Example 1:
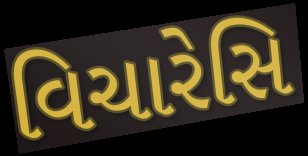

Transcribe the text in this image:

વિચારેસિ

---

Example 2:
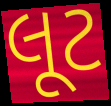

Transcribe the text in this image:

લૂટ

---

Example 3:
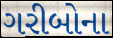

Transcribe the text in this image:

ગરીબોના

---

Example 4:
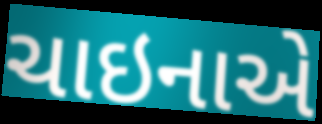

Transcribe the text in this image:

ચાઇનાએ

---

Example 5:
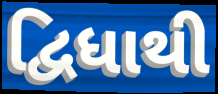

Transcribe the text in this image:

દ્વિધાથી